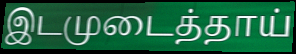
இடமுடைத்தாய்